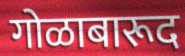
गोळाबारूद